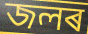
জলৰ